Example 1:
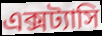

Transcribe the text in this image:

এক্সট্যাসি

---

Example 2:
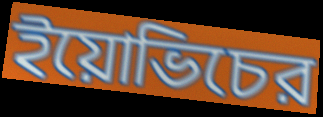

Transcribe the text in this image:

ইয়োভিচের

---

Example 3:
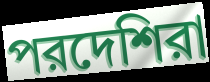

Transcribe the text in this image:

পরদেশিরা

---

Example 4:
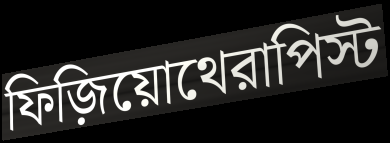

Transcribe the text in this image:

ফিজ়িয়োথেরাপিস্ট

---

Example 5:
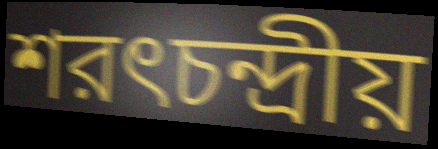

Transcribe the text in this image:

শরৎচন্দ্রীয়